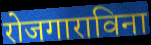
रोजगाराविना